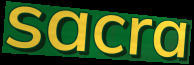
sacra